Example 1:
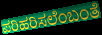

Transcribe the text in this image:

ಪರಿಹರಿಸಲೆಂಬಂತೆ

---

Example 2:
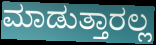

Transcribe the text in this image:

ಮಾಡುತ್ತಾರಲ್ಲ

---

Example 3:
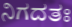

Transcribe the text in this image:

ನಿಗದತಃ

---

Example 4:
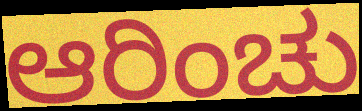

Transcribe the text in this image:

ಆರಿಂಚು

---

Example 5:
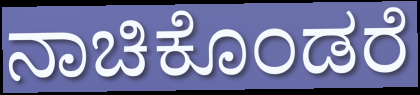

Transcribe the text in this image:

ನಾಚಿಕೊಂಡರೆ